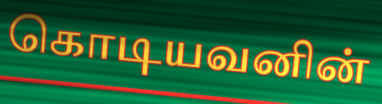
கொடியவனின்